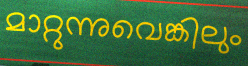
മാറ്റുന്നുവെങ്കിലും